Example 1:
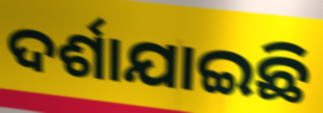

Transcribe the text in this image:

ଦର୍ଶାଯାଇଛି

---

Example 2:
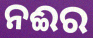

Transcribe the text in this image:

ନଈର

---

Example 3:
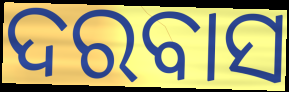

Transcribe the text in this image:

ଦରବାସ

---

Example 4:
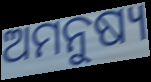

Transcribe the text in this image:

ଅମନୁଷ୍ୟ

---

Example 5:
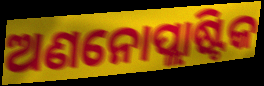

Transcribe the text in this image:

ଅଣନୋପ୍ଲାଷ୍ଟିକ